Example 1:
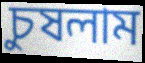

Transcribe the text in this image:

চুষলাম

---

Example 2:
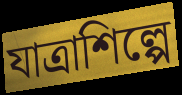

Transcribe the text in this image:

যাত্রাশিল্পে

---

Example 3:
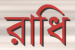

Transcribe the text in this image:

রাধি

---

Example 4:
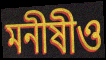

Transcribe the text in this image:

মনীষীও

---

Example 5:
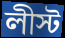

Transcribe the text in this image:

লীস্ট